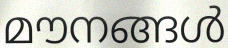
മൗനങ്ങൾ